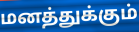
மனத்துக்கும்